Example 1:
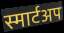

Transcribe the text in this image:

स्मार्टअप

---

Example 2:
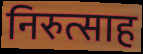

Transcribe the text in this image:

निरुत्साह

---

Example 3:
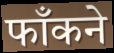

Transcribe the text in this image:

फाँकने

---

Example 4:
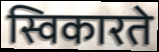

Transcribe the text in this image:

स्विकारते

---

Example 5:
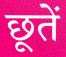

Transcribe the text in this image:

छूतें